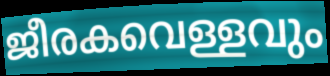
ജീരകവെള്ളവും